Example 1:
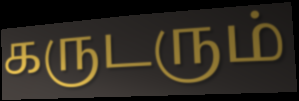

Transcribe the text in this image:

கருடரும்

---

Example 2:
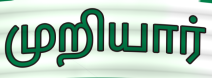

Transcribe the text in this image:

முறியார்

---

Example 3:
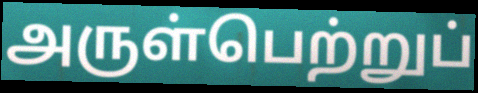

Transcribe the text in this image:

அருள்பெற்றுப்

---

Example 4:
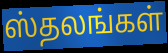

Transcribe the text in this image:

ஸ்தலங்கள்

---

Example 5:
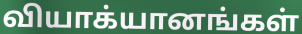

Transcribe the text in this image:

வியாக்யானங்கள்